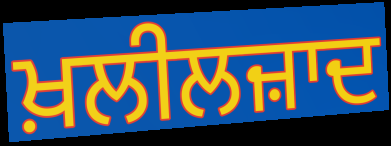
ਖ਼ਲੀਲਜ਼ਾਦ